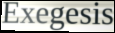
Exegesis